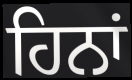
ਹਿਨਾਂ